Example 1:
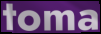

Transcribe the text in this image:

toma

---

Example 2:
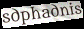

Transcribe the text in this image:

sdphadnis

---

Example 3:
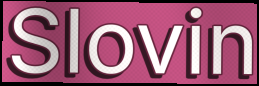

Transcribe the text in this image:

Slovin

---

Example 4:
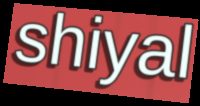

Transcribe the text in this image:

shiyal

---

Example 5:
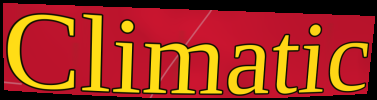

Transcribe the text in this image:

Climatic